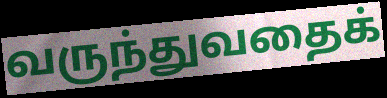
வருந்துவதைக்